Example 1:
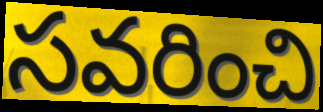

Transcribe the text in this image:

సవరించి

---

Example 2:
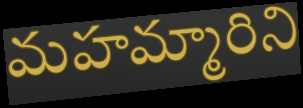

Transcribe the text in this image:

మహమ్మారిని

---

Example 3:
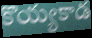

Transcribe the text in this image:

కొయ్యకాడ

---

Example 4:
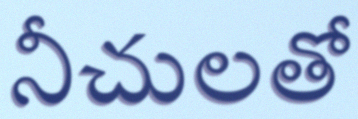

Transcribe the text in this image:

నీచులతో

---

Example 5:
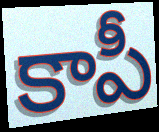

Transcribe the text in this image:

కాపీ